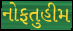
નોફતુહીમ